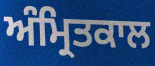
ਅੰਮ੍ਰਿਤਕਾਲ